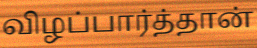
விழப்பார்த்தான்